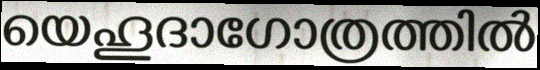
യെഹൂദാഗോത്രത്തിൽ